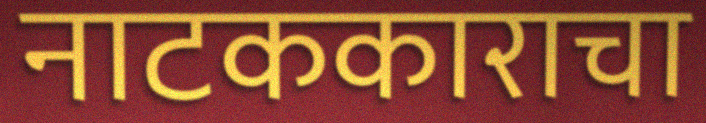
नाटककाराचा